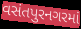
વસંતપુરનગરમાં